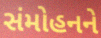
સંમોહનને